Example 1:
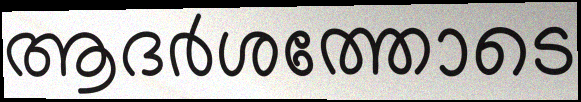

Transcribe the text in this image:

ആദർശത്തോടെ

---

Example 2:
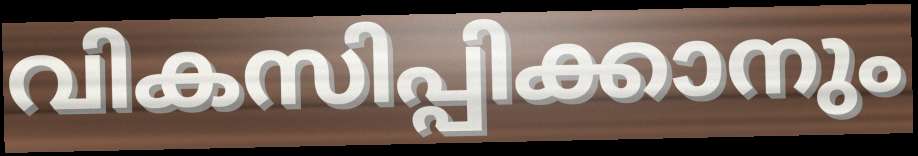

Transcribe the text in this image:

വികസിപ്പിക്കാനും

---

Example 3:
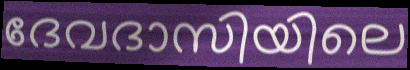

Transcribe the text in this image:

ദേവദാസിയിലെ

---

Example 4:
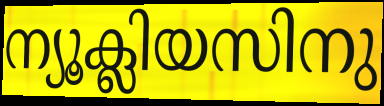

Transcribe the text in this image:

ന്യൂക്ലിയസിനു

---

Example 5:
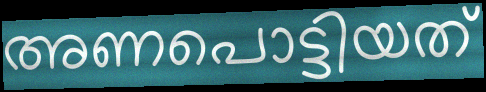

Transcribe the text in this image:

അണപൊട്ടിയത്